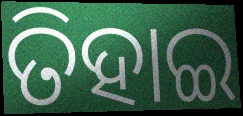
ତିହାଇ